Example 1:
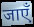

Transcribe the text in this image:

जाएँ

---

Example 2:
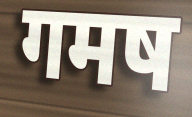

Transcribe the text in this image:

गमष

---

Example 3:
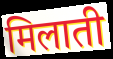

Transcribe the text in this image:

मिलाती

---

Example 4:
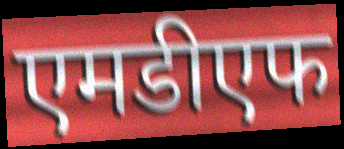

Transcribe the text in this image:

एमडीएफ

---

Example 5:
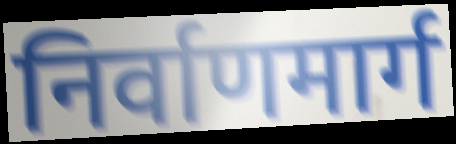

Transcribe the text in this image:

निर्वाणमार्ग